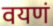
वयणं